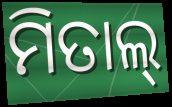
ମିତାଲ୍